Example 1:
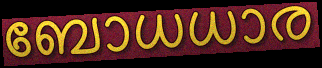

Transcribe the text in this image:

ബോധധാര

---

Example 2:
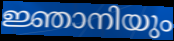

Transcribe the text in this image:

ജ്ഞാനിയും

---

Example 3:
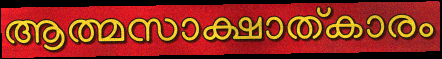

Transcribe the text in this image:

ആത്മസാക്ഷാത്കാരം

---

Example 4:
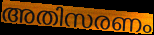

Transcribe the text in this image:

അതിസരണം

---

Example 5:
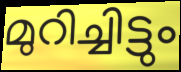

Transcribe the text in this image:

മുറിച്ചിട്ടും